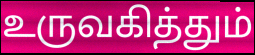
உருவகித்தும்